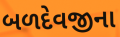
બળદેવજીના